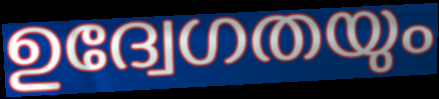
ഉദ്വേഗതയും